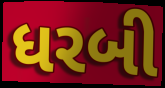
ધરબી